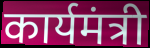
कार्यमंत्री